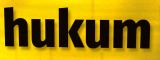
hukum